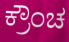
ಕ್ರೌಂಚ